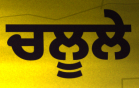
ਚਲੂਲੇ